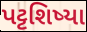
પટ્ટશિષ્યા